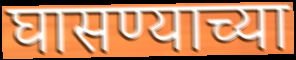
घासण्याच्या